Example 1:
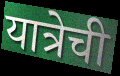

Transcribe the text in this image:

यात्रेची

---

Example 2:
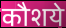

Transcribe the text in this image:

कौशये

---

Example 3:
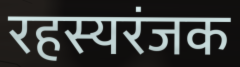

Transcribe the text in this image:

रहस्यरंजक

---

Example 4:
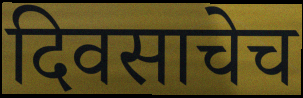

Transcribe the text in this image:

दिवसाचेच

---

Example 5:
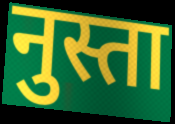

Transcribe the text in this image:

नुस्ता